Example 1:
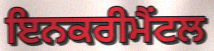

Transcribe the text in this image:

ਇਨਕਰੀਮੈਂਟਲ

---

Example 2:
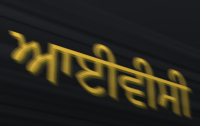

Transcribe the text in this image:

ਆਈਵੀਸੀ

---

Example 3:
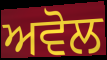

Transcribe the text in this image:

ਅਵੋਲ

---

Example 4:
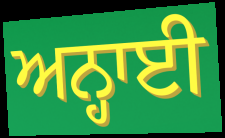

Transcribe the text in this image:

ਅਨ੍ਹਾਈ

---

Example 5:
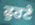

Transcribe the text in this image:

ਫੁਰਣੇ